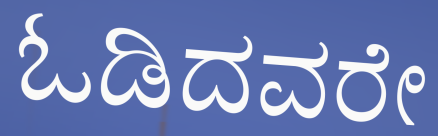
ಓಡಿದವರೇ